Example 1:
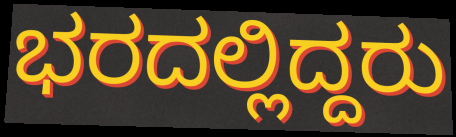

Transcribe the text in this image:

ಭರದಲ್ಲಿದ್ದರು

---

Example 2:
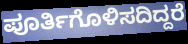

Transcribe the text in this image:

ಪೂರ್ತಿಗೊಳಿಸದಿದ್ದರೆ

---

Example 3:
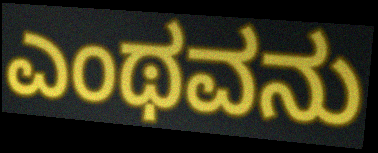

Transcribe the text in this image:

ಎಂಥವನು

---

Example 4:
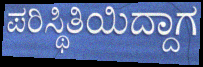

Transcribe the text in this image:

ಪರಿಸ್ಥಿತಿಯಿದ್ದಾಗ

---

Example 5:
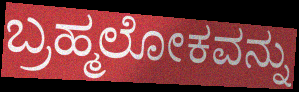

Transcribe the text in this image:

ಬ್ರಹ್ಮಲೋಕವನ್ನು